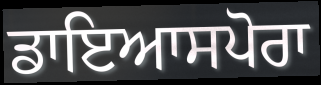
ਡਾਇਆਸਪੋਰਾ